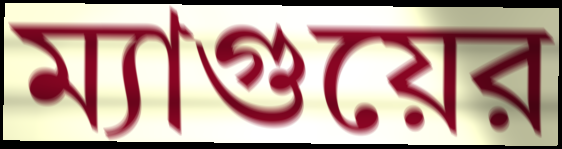
ম্যাগুয়ের